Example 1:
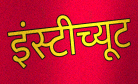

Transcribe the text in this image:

इंस्‍टीच्‍यूट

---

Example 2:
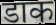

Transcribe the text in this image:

डाक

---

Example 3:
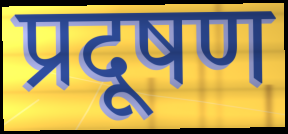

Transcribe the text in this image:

प्रदूषण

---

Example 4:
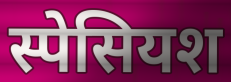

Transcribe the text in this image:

स्पेसियश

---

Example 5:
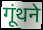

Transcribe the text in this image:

गूंथने